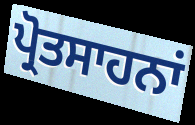
ਪ੍ਰੋਤਸਾਹਨਾਂ